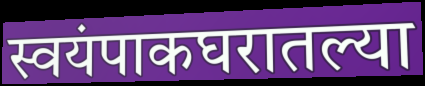
स्वयंपाकघरातल्या